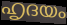
ഹൃദയം